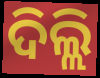
ଦିଲ୍ଲି